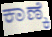
ಕಾಣ್ಕೆ